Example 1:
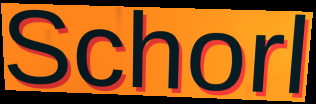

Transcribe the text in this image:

Schorl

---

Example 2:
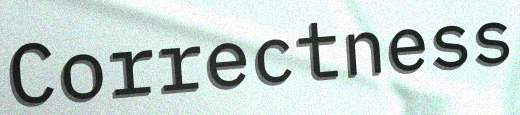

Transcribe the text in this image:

Correctness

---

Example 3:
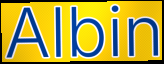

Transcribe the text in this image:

Albin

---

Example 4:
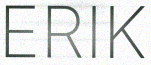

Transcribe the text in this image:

ERIK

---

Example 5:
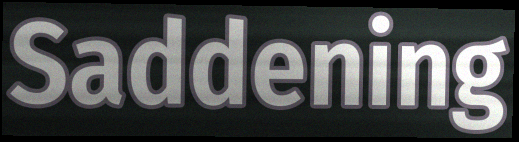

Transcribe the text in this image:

Saddening